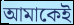
আমাকেই